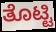
ತೊಟ್ಟಿ